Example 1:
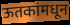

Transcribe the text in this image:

ऊतकांमधून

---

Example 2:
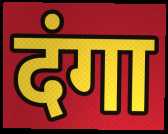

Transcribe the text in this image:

दंगा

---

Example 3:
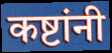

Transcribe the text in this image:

कष्टांनी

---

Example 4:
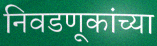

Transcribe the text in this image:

निवडणूकांच्या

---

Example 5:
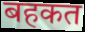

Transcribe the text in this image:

बहकत